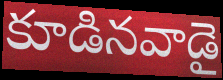
కూడినవాడై